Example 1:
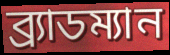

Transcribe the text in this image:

ব্র্যাডম্যান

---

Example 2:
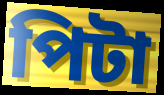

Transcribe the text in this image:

পিটা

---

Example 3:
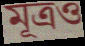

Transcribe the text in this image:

মূত্রও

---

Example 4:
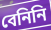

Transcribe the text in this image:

বেনিনি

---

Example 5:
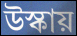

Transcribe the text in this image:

উস্কায়